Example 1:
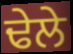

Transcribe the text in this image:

ਢੇਲੇ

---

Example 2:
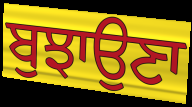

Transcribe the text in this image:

ਬੁਝਾਉਣਾ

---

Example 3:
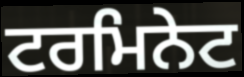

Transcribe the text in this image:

ਟਰਮਿਨੇਟ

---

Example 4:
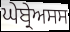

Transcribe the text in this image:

ਘੇਬ੍ਰੇਅਸਸ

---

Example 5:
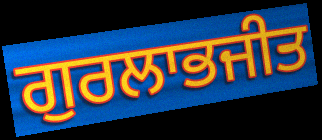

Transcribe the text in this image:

ਗੁਰਲਾਭਜੀਤ